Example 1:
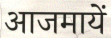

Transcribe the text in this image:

आजमायें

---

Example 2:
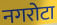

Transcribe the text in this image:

नगरोटा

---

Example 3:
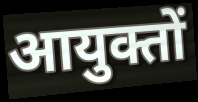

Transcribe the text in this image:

आयुक्तों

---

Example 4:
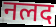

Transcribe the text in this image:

नलद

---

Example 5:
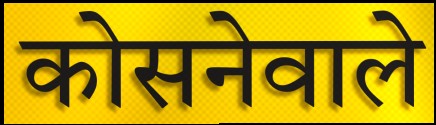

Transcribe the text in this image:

कोसनेवाले